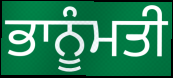
ਭਾਨੂੰਮਤੀ